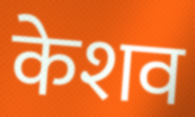
केशव